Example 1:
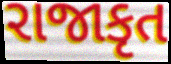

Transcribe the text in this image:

રાજાકૃત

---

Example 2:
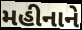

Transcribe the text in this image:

મહીનાને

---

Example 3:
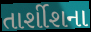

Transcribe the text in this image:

તાર્શીશના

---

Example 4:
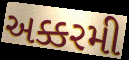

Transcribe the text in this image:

અક્કરમી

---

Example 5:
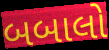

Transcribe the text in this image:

બબાલો